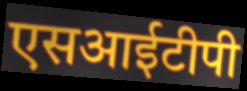
एसआईटीपी